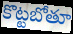
కొట్టబోతూ